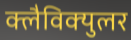
क्लैविक्युलर